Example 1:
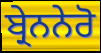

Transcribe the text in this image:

ਬ੍ਰੇਨਨੇਰੋ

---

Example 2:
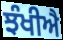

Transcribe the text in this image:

ਝੰਖੀਐ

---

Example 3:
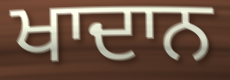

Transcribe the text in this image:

ਖਾਦਾਨ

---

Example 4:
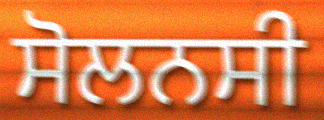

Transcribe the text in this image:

ਸੋਲਨਸੀ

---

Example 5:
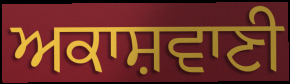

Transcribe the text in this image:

ਅਕਾਸ਼ਵਾਣੀ